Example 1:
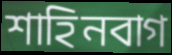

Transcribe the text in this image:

শাহিনবাগ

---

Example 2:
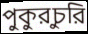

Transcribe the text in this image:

পুকুরচুরি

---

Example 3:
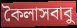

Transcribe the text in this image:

কৈলাসবাবু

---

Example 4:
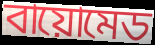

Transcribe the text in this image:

বায়োমেড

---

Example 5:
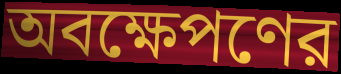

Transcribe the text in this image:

অবক্ষেপণের